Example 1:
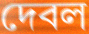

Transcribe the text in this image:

দেবল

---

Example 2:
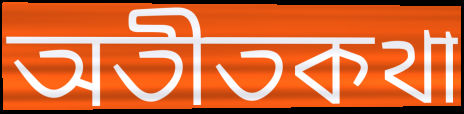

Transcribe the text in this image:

অতীতকথা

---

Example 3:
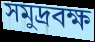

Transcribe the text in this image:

সমুদ্রবক্ষ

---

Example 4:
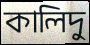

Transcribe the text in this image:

কালিদু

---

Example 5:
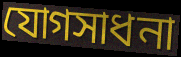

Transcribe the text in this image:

যোগসাধনা